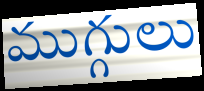
ముగ్గులు